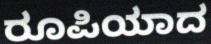
ರೂಪಿಯಾದ